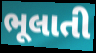
ભૂલાતી